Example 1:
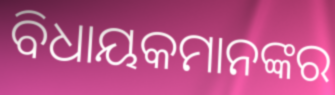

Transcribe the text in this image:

ବିଧାୟକମାନଙ୍କର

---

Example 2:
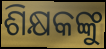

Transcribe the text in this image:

ଶିକ୍ଷକଙ୍କୁ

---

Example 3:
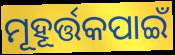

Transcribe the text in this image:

ମୂହୂର୍ତ୍ତକପାଇଁ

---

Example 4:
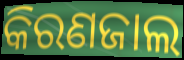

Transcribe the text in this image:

କିରଣଜାଲ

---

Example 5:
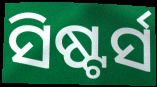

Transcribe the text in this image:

ସିଷ୍ଟର୍ସ